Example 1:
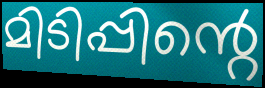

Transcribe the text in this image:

മിടിപ്പിന്റെ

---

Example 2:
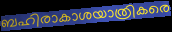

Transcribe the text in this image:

ബഹിരാകാശയാത്രികരെ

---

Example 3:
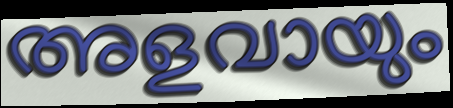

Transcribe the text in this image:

അളവായും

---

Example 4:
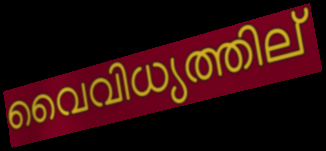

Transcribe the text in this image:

വൈവിധ്യത്തില്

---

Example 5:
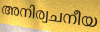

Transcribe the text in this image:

അനിര്വചനീയ